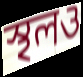
স্থলও